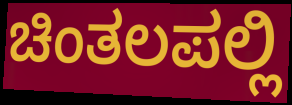
ಚಿಂತಲಪಲ್ಲಿ